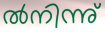
ൽനിന്നു്